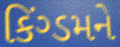
કિંગ્ડમને